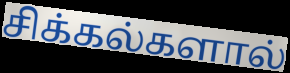
சிக்கல்களால்